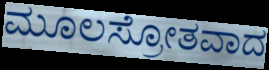
ಮೂಲಸ್ರೋತವಾದ